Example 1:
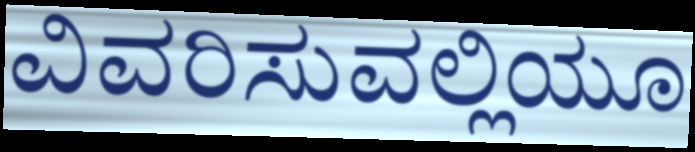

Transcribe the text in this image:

ವಿವರಿಸುವಲ್ಲಿಯೂ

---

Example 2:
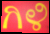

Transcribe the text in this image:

ಗಿಳಿ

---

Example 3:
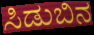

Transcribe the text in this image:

ಸಿಡುಬಿನ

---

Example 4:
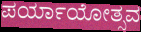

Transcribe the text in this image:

ಪರ್ಯಾಯೋತ್ಸವ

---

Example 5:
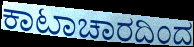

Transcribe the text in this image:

ಕಾಟಾಚಾರದಿಂದ